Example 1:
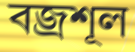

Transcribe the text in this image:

বজ্রশূল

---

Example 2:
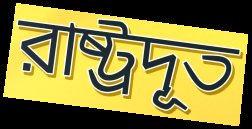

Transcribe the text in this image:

রাষ্ট্রদূত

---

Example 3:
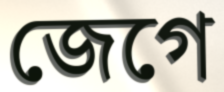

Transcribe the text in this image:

জেগে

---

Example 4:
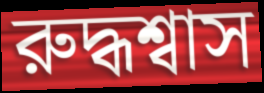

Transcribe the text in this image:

রুদ্ধশ্বাস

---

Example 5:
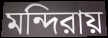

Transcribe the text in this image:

মন্দিরায়